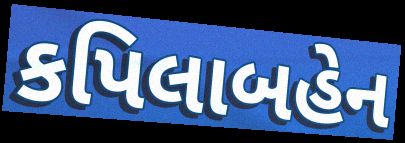
કપિલાબહેન